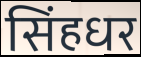
सिंहधर